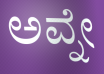
ಅವ್ನೇ